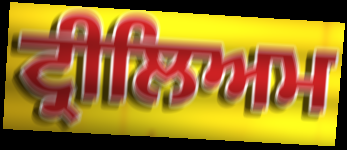
ਟ੍ਰੀਲਿਅਮ